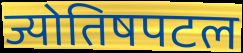
ज्योतिषपटल